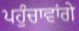
ਪਹੁੰਚਾਵਾਂਗੇ